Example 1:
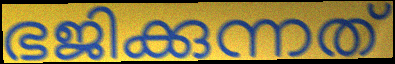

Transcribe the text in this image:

ഭജിക്കുന്നത്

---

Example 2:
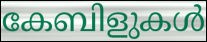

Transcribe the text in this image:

കേബിളുകൾ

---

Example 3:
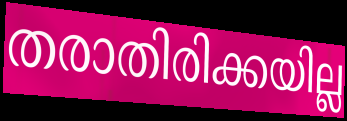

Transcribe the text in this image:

തരാതിരിക്കയില്ല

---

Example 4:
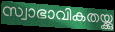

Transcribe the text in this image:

സ്വാഭാവികതയ്ക്കു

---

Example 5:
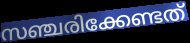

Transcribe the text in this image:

സഞ്ചരിക്കേണ്ടത്